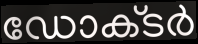
ഡോക്‌ടർ